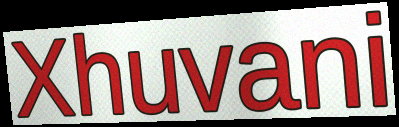
Xhuvani